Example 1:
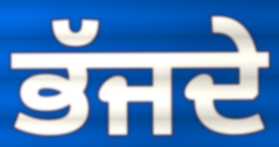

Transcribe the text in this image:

ਭੱਜਦੇ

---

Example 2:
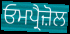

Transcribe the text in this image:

ਓਮਪ੍ਰੈਜ਼ੋਲ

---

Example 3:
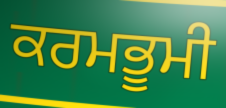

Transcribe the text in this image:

ਕਰਮਭੂਮੀ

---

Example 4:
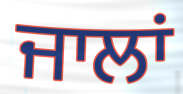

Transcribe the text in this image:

ਜਾਲਾਂ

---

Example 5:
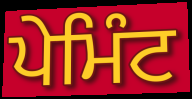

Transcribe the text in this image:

ਪੇਮਿੰਟ